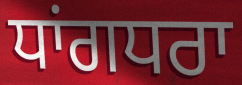
ਧਾਂਗਧਰਾ